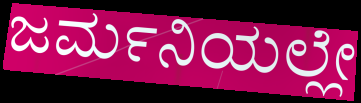
ಜರ್ಮನಿಯಲ್ಲೇ